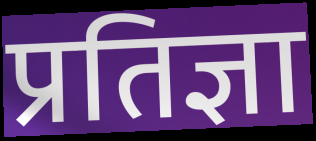
प्रतिज्ञा